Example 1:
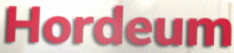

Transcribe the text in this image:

Hordeum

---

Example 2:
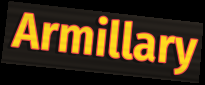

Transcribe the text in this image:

Armillary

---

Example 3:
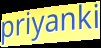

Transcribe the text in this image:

priyanki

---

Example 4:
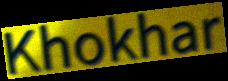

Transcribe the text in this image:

Khokhar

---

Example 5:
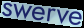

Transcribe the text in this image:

swerve